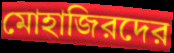
মোহাজিরদের